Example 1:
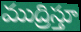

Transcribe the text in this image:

ముద్రిస్తూ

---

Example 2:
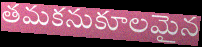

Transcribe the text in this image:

తమకనుకూలమైన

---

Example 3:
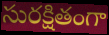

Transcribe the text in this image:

సురక్షితంగా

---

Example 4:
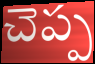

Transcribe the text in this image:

చెప్ప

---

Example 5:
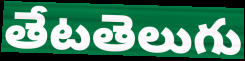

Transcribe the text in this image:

తేటతెలుగు